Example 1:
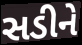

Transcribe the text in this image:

સડીને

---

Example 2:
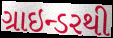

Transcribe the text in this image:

ગ્રાઇન્ડરથી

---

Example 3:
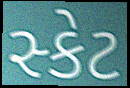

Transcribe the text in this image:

સ્કેટ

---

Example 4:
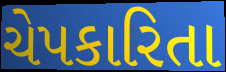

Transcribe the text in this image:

ચેપકારિતા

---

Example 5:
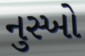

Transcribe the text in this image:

નુસ્ખો